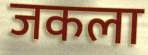
जकला